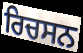
ਰਿਚਸਨ